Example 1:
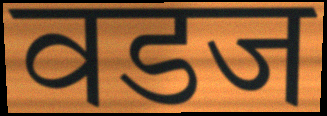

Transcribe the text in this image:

वडज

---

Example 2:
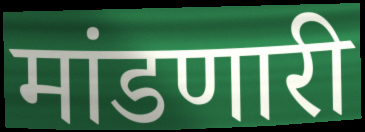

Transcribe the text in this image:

मांडणारी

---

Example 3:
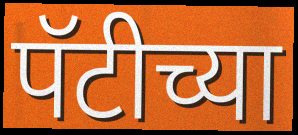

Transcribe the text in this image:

पॅटीच्या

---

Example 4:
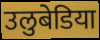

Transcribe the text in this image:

उलुबेडिया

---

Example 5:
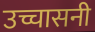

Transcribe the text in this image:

उच्चासनी